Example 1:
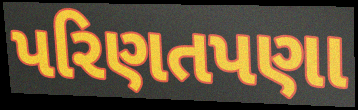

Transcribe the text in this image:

પરિણતપણા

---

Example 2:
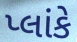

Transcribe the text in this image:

પ્લાંકે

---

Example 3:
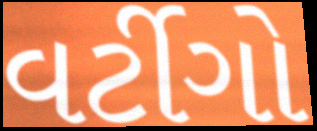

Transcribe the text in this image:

વર્ટીગો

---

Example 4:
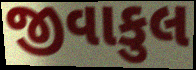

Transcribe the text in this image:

જીવાકુલ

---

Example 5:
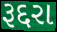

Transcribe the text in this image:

રૂદ્દરા